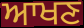
ਆਖਣ